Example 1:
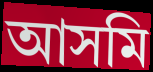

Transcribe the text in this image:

আসমি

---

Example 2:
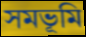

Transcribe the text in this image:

সমভূমি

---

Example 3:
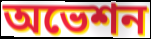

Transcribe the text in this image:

অভেশন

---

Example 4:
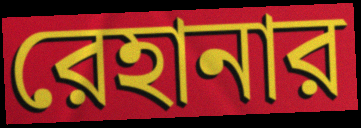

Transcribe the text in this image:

রেহানার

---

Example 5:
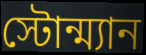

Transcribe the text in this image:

স্টোন্ম্যান